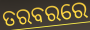
ତରବରରେ